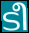
ടീ